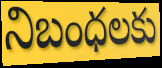
నిబంధలకు